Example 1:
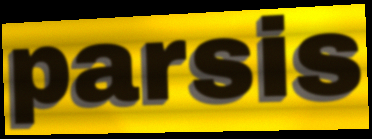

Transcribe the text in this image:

parsis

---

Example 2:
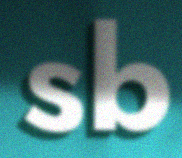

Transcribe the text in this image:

sb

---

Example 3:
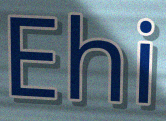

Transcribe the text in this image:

Ehi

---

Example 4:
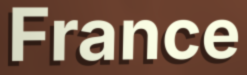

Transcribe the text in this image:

France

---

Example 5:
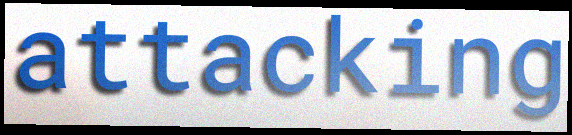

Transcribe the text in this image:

attacking